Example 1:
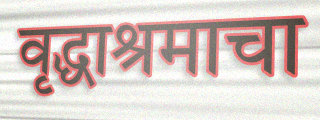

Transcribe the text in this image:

वृद्धाश्रमाचा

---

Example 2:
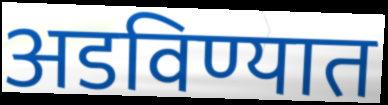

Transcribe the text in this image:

अडविण्यात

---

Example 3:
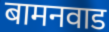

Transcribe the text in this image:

बामनवाड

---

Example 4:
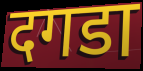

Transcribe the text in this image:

दगडा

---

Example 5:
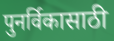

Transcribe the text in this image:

पुनर्विकासाठी